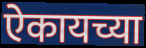
ऐकायच्या